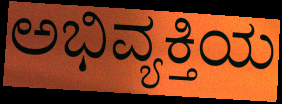
ಅಭಿವ್ಯಕ್ತಿಯ